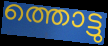
ത്തൊട്ടു